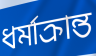
ধর্মাক্রান্ত